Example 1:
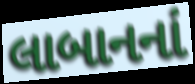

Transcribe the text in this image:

લાબાનનાં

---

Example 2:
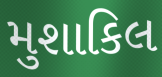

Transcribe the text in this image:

મુશાકિલ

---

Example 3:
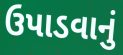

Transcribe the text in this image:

ઉપાડવાનું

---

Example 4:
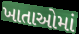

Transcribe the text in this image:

ખાતાઓમાં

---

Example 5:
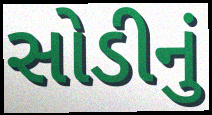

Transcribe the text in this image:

સોડીનું